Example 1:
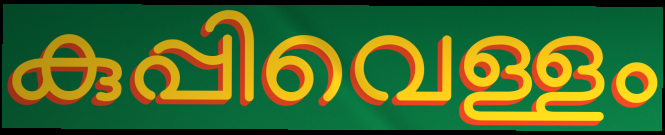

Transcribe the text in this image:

കുപ്പിവെള്ളം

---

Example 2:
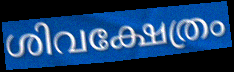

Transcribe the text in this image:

ശിവക്ഷേത്രം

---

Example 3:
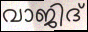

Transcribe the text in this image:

വാജിദ്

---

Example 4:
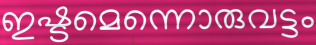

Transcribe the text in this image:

ഇഷ്ടമെന്നൊരുവട്ടം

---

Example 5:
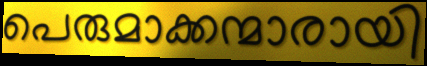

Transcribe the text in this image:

പെരുമാക്കന്മാരായി